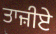
ਤਾਜ਼ੀਏ